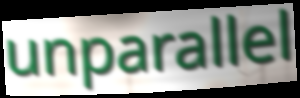
unparallel